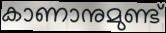
കാണാനുമുണ്ട്